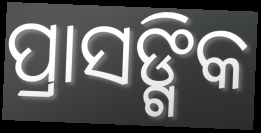
ପ୍ରାସଙ୍ଗିକ